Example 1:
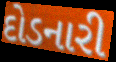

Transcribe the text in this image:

દોડનારી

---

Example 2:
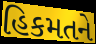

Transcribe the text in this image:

હિકમતને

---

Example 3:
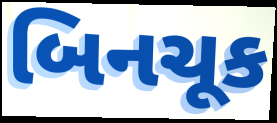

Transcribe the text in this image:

બિનચૂક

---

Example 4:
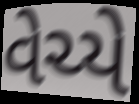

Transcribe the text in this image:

વેચ્યે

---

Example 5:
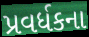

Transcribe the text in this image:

પ્રવર્ધકના